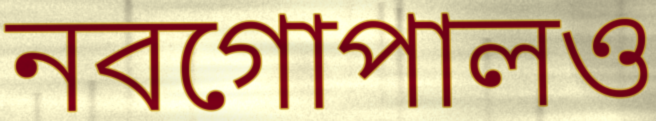
নবগোপালও